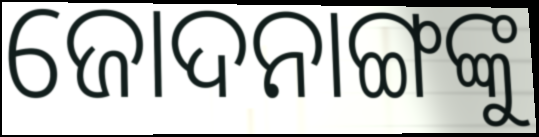
ଜୋଦନାଙ୍ଗଙ୍କୁ